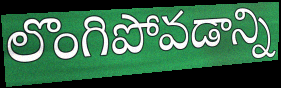
లొంగిపోవడాన్ని